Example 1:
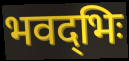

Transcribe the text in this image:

भवद्‌भिः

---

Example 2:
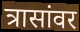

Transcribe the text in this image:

त्रासांवर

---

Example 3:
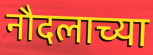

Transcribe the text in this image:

नौदलाच्या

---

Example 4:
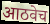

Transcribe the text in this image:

आठवेच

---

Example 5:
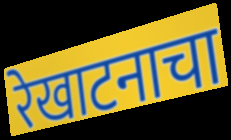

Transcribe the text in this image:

रेखाटनाचा